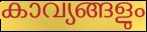
കാവ്യങ്ങളും